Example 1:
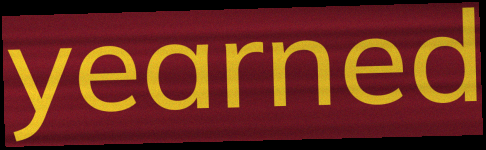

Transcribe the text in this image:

yearned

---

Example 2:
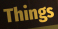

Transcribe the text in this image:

Things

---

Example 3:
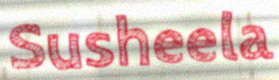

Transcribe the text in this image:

Susheela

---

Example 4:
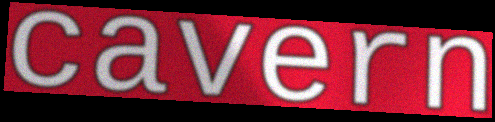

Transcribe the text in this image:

cavern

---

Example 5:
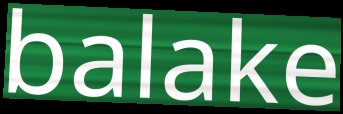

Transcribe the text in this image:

balake